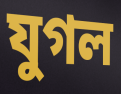
যুগল